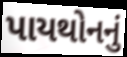
પાયથોનનું